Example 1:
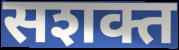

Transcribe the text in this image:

सशक्त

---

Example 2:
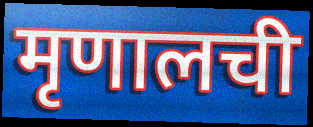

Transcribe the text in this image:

मृणालची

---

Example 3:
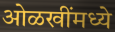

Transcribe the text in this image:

ओळखींमध्ये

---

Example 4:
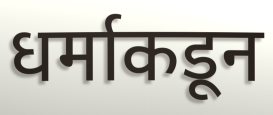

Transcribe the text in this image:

धर्माकडून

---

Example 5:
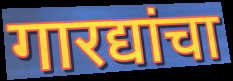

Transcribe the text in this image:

गारद्यांचा